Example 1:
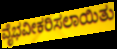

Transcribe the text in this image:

ವೈಭವೀಕರಿಸಲಾಯಿತು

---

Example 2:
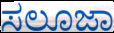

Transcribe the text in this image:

ಸಲೂಜಾ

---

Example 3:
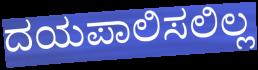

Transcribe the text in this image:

ದಯಪಾಲಿಸಲಿಲ್ಲ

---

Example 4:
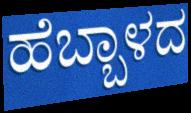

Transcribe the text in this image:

ಹೆಬ್ಬಾಳದ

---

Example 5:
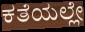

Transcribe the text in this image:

ಕತೆಯಲ್ಲೇ